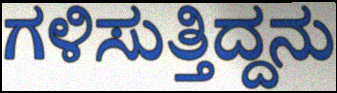
ಗಳಿಸುತ್ತಿದ್ದನು